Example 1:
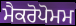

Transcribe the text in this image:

ਮੈਕਰੋਪੋਮਮ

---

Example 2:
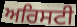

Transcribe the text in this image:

ਅਰਿਸਟੀ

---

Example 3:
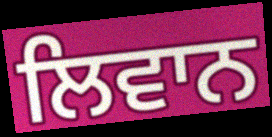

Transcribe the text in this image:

ਲਿਵਾਨ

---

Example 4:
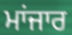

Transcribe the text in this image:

ਮਾਂਜਾਰ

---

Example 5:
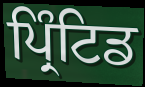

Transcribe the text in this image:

ਪ੍ਰਿੰਟਿਡ